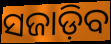
ସଜାଡ଼ିବ